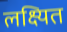
लक्ष्यित